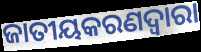
ଜାତୀୟକରଣଦ୍ୱାରା